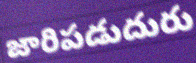
జారిపడుదురు